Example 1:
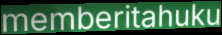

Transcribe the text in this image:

memberitahuku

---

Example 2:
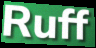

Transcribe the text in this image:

Ruff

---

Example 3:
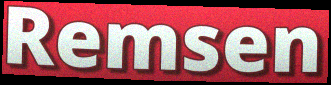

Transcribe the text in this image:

Remsen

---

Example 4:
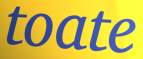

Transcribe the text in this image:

toate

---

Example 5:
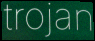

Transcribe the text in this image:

trojan